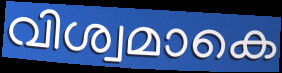
വിശ്വമാകെ